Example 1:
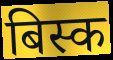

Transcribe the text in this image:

बिस्क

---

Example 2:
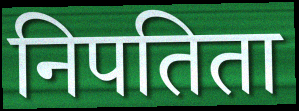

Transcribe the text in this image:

निपतिता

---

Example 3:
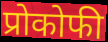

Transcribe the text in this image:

प्रोकोफी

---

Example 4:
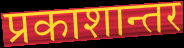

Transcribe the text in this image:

प्रकाशान्तर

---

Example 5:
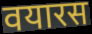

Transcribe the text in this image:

वयारस